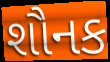
શૌનક